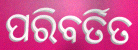
ପରିବର୍ତିତ